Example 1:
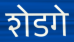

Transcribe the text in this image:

शेडगे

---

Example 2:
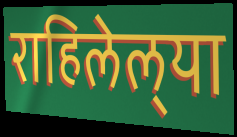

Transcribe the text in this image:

राहिलेल्या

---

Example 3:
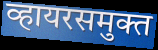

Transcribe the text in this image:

व्हायरसमुक्त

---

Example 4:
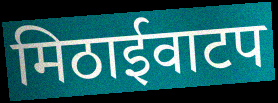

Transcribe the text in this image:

मिठाईवाटप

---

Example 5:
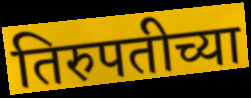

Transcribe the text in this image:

तिरुपतीच्या